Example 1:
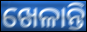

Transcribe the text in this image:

ଖେଳାନ୍ତି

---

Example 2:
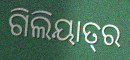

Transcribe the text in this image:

ଗିଲିୟାତ୍‍ର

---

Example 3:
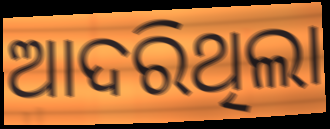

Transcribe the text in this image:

ଆଦରିଥିଲା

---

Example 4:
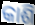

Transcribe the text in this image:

କାଶି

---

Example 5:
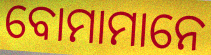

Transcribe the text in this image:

ବୋମାମାନେ